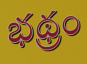
భథ్రం